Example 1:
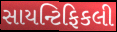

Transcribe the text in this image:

સાયન્ટિફિકલી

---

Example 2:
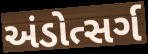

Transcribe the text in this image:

અંડોત્સર્ગ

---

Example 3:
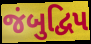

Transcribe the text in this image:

જંબુદ્વિપ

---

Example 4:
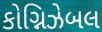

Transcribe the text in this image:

કોગ્નિઝેબલ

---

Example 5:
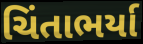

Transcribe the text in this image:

ચિંતાભર્યા